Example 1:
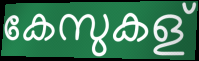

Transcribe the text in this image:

കേസുകള്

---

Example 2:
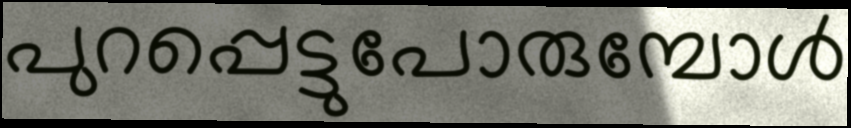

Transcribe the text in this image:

പുറപ്പെട്ടുപോരുമ്പോൾ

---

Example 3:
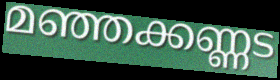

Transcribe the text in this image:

മഞ്ഞക്കണ്ണട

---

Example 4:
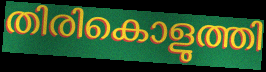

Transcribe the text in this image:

തിരികൊളുത്തി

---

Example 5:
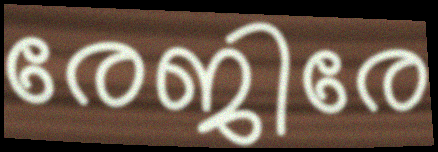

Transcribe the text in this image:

രേജിരേ